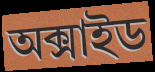
অক্সাইড